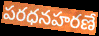
పరధనహరణే